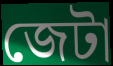
জেটা